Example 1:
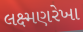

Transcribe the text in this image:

લક્ષ્મણરેખા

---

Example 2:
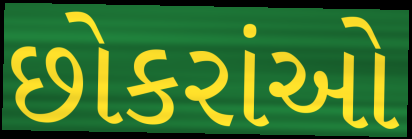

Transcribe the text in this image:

છોકરાંઓ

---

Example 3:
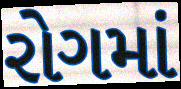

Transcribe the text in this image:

રોગમાં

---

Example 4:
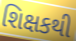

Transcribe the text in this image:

શિક્ષકથી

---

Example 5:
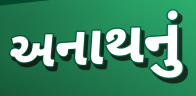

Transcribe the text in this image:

અનાથનું